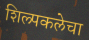
शिल्पकलेचा